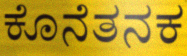
ಕೊನೆತನಕ